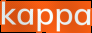
kappa